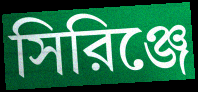
সিরিঞ্জে